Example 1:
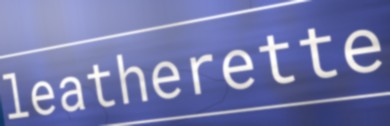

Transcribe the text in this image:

leatherette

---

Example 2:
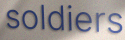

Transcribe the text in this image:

soldiers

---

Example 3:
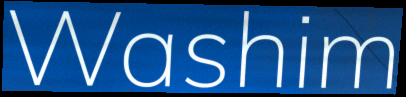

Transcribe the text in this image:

Washim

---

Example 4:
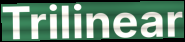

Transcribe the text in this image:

Trilinear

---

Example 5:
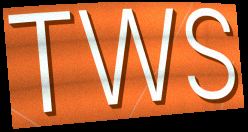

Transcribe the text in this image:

TWS